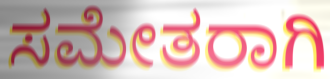
ಸಮೇತರಾಗಿ